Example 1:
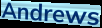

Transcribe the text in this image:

Andrews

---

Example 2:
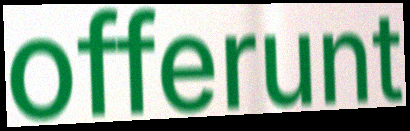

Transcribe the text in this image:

offerunt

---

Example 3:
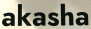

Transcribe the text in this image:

akasha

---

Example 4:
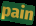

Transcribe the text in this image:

pain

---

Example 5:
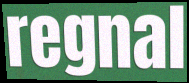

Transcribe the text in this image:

regnal